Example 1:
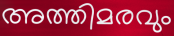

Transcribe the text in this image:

അത്തിമരവും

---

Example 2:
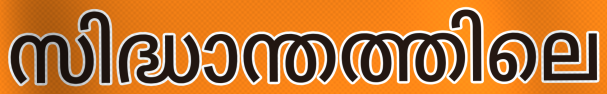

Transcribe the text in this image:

സിദ്ധാന്തത്തിലെ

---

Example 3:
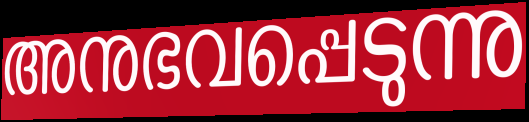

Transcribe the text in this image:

അനുഭവപ്പെടുന്നു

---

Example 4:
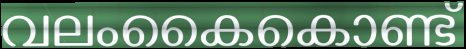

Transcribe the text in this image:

വലംകൈകൊണ്ട്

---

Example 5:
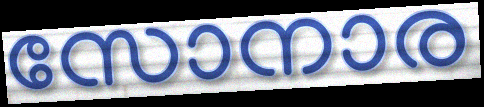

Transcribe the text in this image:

സോനാര